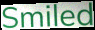
Smiled